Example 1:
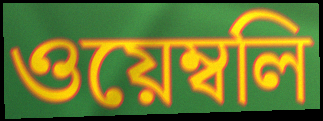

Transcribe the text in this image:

ওয়েম্বলি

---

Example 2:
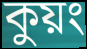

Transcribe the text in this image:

কুয়ং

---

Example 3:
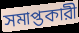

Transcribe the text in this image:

সমাপ্তকারী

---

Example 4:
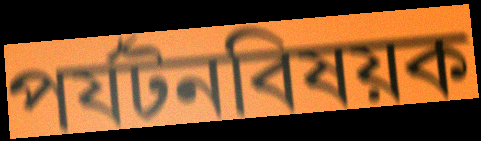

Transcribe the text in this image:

পর্যটনবিষয়ক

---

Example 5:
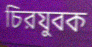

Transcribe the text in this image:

চিরযুবক